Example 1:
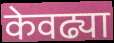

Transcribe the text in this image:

केवढ्या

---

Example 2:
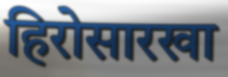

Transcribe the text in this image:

हिरोसारखा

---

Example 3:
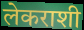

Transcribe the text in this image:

लेकराशी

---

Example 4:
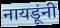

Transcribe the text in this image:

नायडूंनी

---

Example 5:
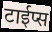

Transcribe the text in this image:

टाईप्स